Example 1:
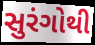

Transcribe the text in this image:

સુરંગોથી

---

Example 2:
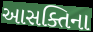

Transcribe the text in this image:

આસક્તિના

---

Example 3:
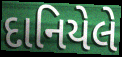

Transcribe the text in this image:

દાનિયેલે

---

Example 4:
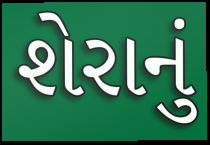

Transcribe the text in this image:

શેરાનું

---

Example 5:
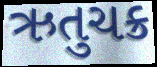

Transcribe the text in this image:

ઋતુચક્ર